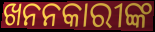
ଖନନକାରୀଙ୍କ